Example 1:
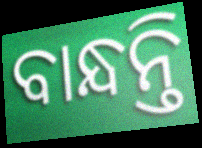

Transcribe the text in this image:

ବାନ୍ଧନ୍ତି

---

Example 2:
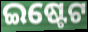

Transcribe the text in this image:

ଇଷ୍ଟେଟ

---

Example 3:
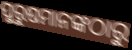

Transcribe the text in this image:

ପୁରୁଷମାନଙ୍କଠାରୁ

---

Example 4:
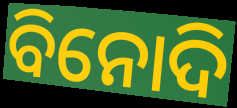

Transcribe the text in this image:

ବିନୋଦି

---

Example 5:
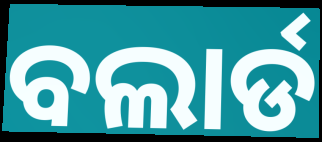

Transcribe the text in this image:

ବଲାର୍ଡ